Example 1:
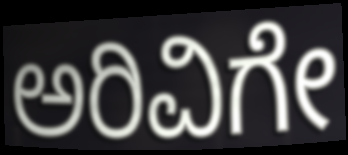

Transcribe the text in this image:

ಅರಿವಿಗೇ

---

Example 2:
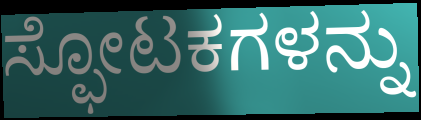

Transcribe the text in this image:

ಸ್ಫೋಟಕಗಳನ್ನು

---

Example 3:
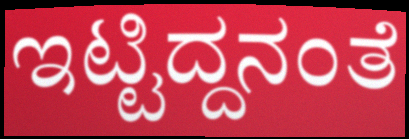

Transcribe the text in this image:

ಇಟ್ಟಿದ್ದನಂತೆ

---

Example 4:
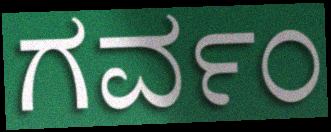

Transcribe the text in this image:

ಗರ್ವಂ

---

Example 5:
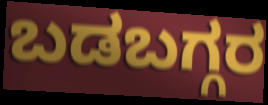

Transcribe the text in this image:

ಬಡಬಗ್ಗರ